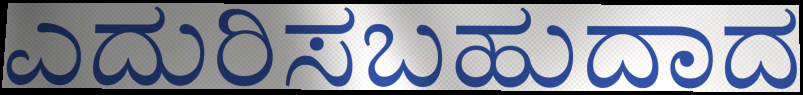
ಎದುರಿಸಬಹುದಾದ